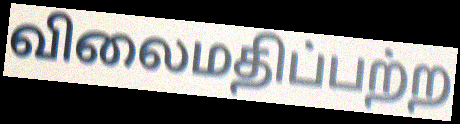
விலைமதிப்பற்ற